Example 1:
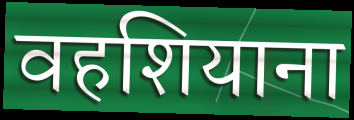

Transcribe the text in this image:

वहशियाना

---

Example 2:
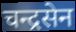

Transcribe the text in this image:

चन्द्रसेन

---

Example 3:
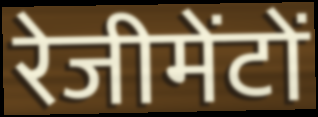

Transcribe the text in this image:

रेजीमेंटों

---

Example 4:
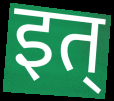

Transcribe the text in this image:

इत्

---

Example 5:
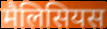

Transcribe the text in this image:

मैलिसियस